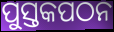
ପୁସ୍ତକପଠନ